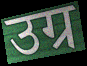
उग्र